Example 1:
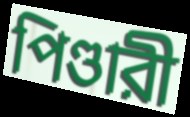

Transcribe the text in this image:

পিণ্ডারী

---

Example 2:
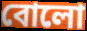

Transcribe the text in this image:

বোলো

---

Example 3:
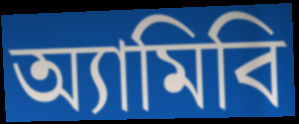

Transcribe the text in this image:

অ্যামিবি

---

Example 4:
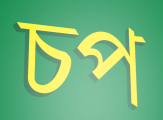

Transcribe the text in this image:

চপ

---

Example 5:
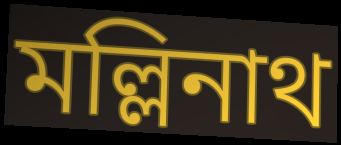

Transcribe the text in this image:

মল্লিনাথ